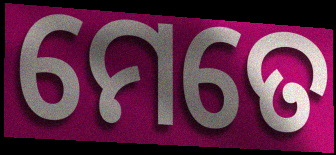
ମେତେ